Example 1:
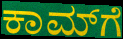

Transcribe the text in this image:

ಕಾಮ್‌ಗೆ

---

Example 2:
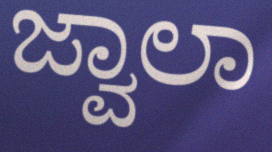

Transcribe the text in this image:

ಜ್ವಾಲಾ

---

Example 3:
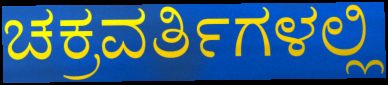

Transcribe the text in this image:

ಚಕ್ರವರ್ತಿಗಳಲ್ಲಿ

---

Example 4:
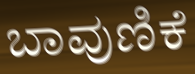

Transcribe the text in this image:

ಬಾವುಣಿಕೆ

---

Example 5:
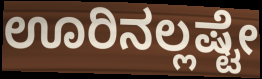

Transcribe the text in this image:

ಊರಿನಲ್ಲಷ್ಟೇ